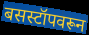
बसस्टॉपवरून